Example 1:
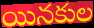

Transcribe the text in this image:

యినకుల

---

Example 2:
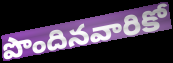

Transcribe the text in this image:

పొందినవారికో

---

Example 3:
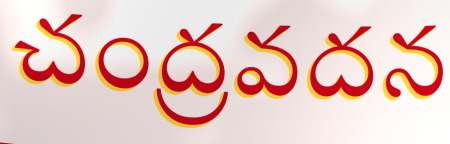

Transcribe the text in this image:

చంద్రవదన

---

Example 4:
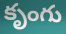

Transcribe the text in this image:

కృంగు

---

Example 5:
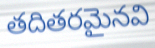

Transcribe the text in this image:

తదితరమైనవి